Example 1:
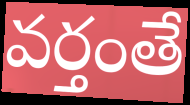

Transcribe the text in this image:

వర్తంతే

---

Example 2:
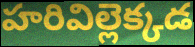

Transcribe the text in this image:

హరివిల్లెక్కడ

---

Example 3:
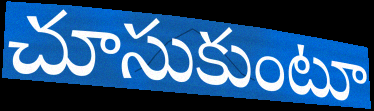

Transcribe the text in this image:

చూసుకుంటూ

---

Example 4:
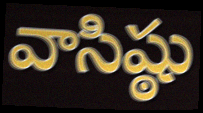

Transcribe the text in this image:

వాసిష్ఠు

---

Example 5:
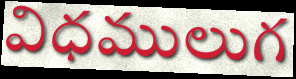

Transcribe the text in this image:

విధములుగ